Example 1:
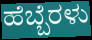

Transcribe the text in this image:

ಹೆಬ್ಬೆರಳು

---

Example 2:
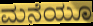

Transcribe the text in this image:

ಮನೆಯೂ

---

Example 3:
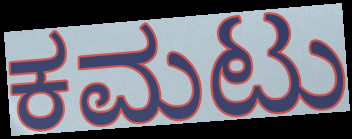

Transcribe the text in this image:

ಕಮಟು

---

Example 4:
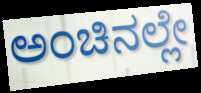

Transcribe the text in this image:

ಅಂಚಿನಲ್ಲೇ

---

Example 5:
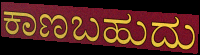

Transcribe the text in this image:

ಕಾಣಬಹುದು